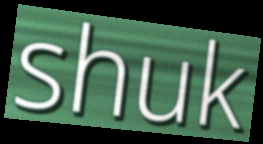
shuk